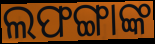
ଲଫଙ୍ଗାଙ୍କ